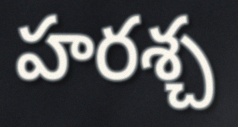
హరశ్చ